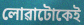
লোৱাটোকেই